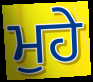
ਮੁਹੇ